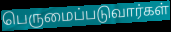
பெருமைப்படுவார்கள்